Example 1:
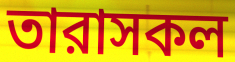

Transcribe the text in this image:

তারাসকল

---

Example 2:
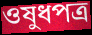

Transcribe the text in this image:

ওষুধপত্র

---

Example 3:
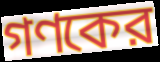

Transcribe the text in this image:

গণকের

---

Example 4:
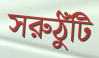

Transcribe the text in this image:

সরুঠুঁটি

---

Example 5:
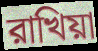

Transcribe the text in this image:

রাখিয়া